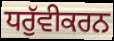
ਧਰੁੱਵੀਕਰਨ